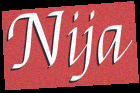
Nija